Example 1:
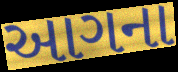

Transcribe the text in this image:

આગના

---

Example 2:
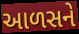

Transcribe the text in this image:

આળસને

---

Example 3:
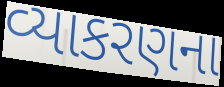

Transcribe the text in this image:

વ્યાકરણના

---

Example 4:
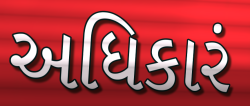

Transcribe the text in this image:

અધિકારં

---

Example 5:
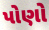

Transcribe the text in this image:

પોણો